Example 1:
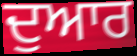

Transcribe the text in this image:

ਦੁਆਰ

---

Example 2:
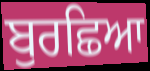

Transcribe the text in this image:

ਬੁਰਛਿਆ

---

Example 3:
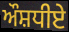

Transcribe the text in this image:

ਔਸ਼ਧੀਏ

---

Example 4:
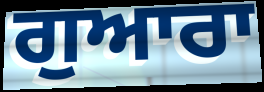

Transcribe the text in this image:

ਗੁਆਰਾ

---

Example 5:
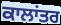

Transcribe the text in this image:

ਕਾਲਾਂਤਰ